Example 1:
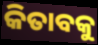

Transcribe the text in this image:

କିତାବକୁ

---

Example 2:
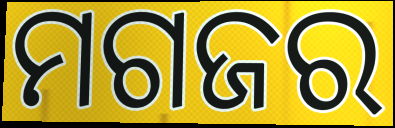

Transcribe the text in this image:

ମଗଜର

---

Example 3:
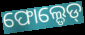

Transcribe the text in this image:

ଫୋଲ୍ଡେଡ୍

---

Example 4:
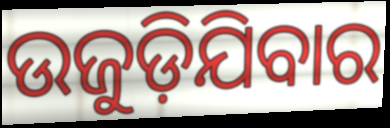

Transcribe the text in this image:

ଉଜୁଡ଼ିଯିବାର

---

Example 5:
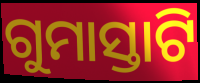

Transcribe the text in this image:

ଗୁମାସ୍ତାଟି